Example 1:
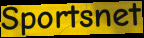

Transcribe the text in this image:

Sportsnet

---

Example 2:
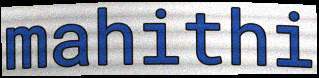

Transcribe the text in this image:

mahithi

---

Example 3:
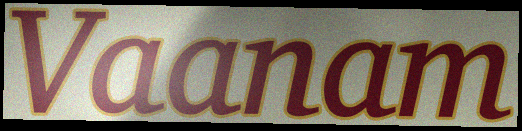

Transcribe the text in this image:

Vaanam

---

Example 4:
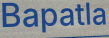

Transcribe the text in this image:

Bapatla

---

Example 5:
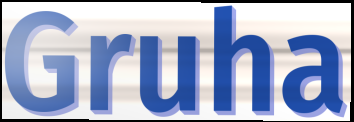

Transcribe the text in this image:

Gruha